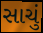
સાચું